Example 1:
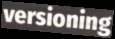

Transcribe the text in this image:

versioning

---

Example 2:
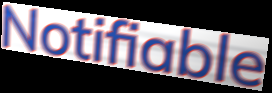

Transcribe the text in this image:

Notifiable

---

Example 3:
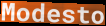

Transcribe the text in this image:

Modesto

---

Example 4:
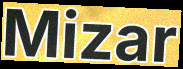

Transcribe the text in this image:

Mizar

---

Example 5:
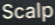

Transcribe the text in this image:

Scalp